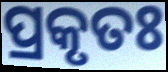
ପ୍ରକୃତଃ